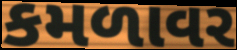
કમળાવર